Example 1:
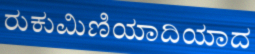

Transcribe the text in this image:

ರುಕುಮಿಣಿಯಾದಿಯಾದ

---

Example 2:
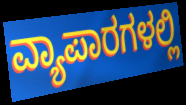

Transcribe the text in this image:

ವ್ಯಾಪಾರಗಳಲ್ಲಿ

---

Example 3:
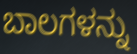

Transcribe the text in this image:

ಬಾಲಗಳನ್ನು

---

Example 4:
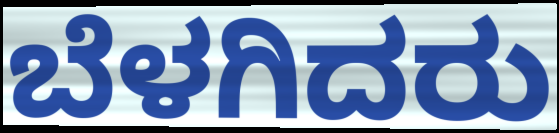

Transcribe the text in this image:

ಬೆಳಗಿದರು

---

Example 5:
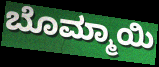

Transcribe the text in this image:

ಬೊಮ್ಮಾಯಿ